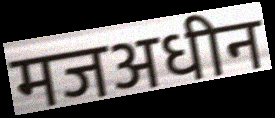
मजअधीन